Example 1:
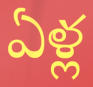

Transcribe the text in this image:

ఏళ్ల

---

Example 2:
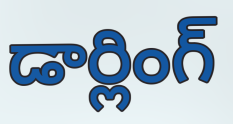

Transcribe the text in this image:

డార్లింగ్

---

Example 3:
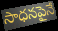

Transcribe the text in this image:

సాధనపైనే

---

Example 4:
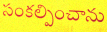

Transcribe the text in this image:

సంకల్పించాను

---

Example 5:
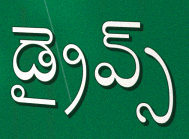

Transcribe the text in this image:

డ్రైవ్స్